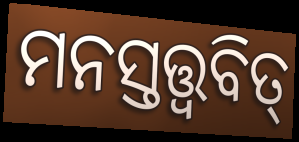
ମନସ୍ତତ୍ତ୍ଵବିତ୍